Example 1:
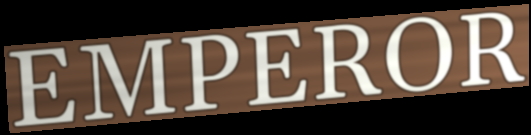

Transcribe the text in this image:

EMPEROR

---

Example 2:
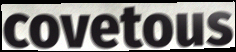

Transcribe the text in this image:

covetous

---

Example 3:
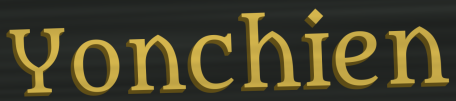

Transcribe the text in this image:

Yonchien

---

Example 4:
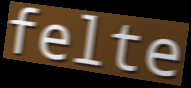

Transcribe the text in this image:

felte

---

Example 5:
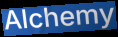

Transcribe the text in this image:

Alchemy